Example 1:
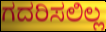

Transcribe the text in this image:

ಗದರಿಸಲಿಲ್ಲ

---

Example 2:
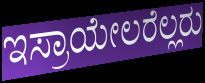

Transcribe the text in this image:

ಇಸ್ರಾಯೇಲರೆಲ್ಲರು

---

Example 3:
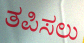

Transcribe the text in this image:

ತಪಿಸಲು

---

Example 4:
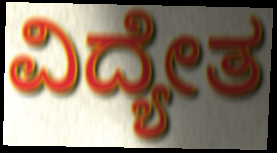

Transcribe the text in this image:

ವಿದ್ಯೇತ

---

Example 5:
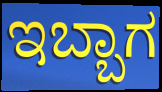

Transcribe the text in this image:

ಇಬ್ಬಾಗ